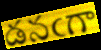
డనఁగా